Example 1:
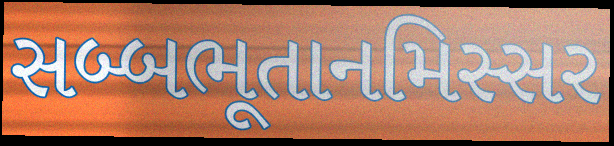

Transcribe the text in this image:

સબ્બભૂતાનમિસ્સર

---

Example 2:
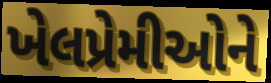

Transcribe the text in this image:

ખેલપ્રેમીઓને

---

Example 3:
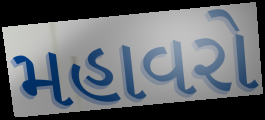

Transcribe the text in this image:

મહાવરો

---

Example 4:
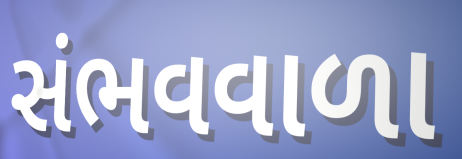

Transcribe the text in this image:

સંભવવાળા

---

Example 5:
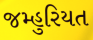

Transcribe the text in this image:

જમ્હુરિયત